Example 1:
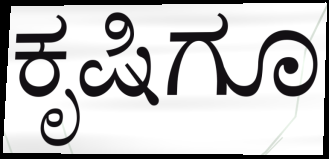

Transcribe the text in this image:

ಕೃಷಿಗೂ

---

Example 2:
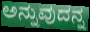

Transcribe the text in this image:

ಅನ್ನುವುದನ್ನ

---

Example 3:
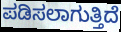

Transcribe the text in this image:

ಪಡಿಸಲಾಗುತ್ತಿದೆ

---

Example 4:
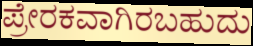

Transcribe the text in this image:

ಪ್ರೇರಕವಾಗಿರಬಹುದು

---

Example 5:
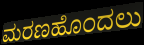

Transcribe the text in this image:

ಮರಣಹೊಂದಲು